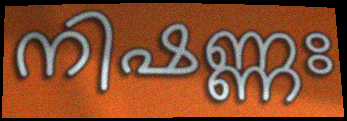
നിഷണ്ണഃ